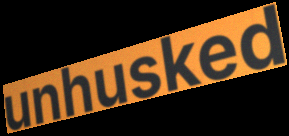
unhusked